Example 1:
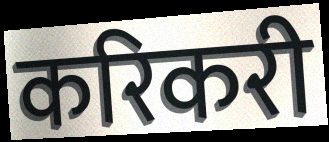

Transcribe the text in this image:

करिकरी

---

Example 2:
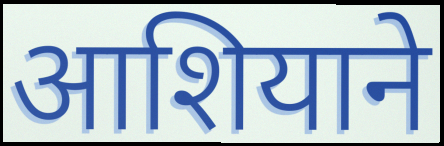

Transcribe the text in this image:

आशियाने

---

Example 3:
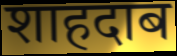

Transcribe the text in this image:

शाहदाब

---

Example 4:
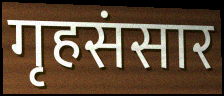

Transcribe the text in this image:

गृहसंसार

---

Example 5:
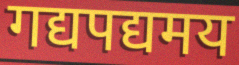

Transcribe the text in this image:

गद्यपद्यमय